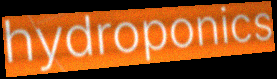
hydroponics